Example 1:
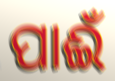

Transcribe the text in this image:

ପାଈଁ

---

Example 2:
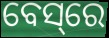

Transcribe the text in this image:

ବେସ୍‌ରେ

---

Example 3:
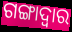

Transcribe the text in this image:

ଗଙ୍ଗାଦ୍ୱାର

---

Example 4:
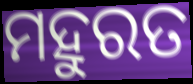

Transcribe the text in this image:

ମହୁରତ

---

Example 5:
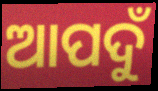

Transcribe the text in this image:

ଆପଦୁଁ